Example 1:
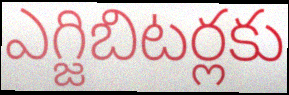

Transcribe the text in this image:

ఎగ్జిబిటర్లకు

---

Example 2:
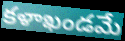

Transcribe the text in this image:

కళాఖండమే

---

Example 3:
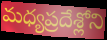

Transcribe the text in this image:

మధ్యప్రదేశ్లోని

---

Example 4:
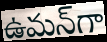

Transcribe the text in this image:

ఉమన్‌గా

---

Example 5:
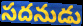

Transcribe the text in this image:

సదనుడు